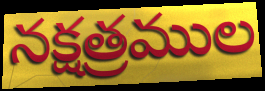
నక్షత్రముల